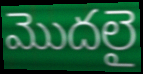
మొదలై